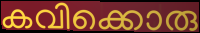
കവിക്കൊരു